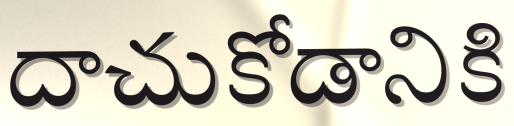
దాచుకోడానికి